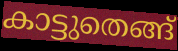
കാട്ടുതെങ്ങ്